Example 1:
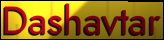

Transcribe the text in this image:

Dashavtar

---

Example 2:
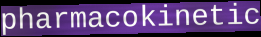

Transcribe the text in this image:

pharmacokinetic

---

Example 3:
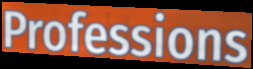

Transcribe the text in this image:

Professions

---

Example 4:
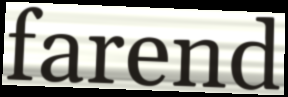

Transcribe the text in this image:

farend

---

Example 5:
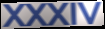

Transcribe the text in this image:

XXXIV